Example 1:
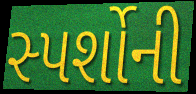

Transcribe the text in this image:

સ્પર્શોની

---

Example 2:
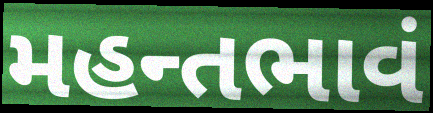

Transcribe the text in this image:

મહન્તભાવં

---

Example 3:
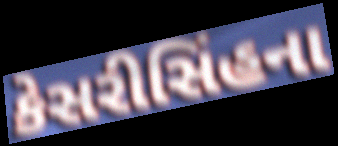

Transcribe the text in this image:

કેસરીસિંહના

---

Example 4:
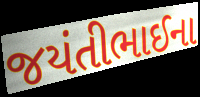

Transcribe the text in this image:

જયંતીભાઈના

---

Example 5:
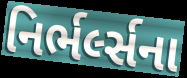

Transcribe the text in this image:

નિર્ભર્લ્સના